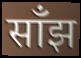
साँझ